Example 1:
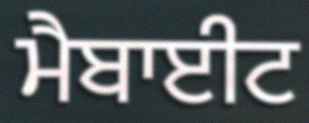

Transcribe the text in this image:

ਮੈਬਾਈਟ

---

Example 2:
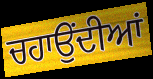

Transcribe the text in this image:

ਚਹਾਉਂਦੀਆਂ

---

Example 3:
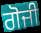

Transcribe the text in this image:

ਗੋਜੀ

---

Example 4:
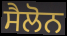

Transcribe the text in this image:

ਸੈਲੋਨ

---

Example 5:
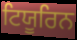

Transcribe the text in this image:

ਟਿਯੂਰਿਨ